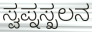
ಸ್ವಪ್ನಸ್ಖಲನ